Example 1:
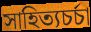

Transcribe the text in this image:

সাহিত্যচর্চা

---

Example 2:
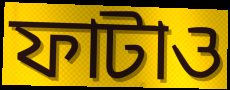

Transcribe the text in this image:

ফাটাও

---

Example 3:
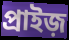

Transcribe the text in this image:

প্রাইজ়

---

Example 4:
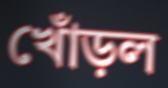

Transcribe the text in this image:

খোঁড়ল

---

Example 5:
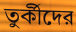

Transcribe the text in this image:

তুর্কীদের